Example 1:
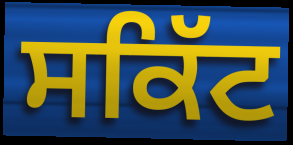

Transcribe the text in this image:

ਸਕਿੱਟ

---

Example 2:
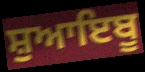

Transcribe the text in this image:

ਸ਼ੁਆਇਬੂ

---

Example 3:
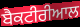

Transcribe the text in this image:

ਬੈਕਟੀਰੀਆਲ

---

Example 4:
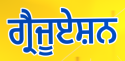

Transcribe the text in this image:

ਗ੍ਰੈਜੂਏਸ਼ਨ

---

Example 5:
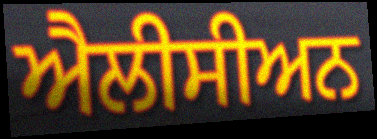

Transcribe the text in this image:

ਐਲੀਸੀਅਨ